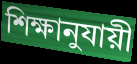
শিক্ষানুযায়ী